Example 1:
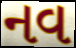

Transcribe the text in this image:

નવ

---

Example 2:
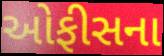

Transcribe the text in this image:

ઓફીસના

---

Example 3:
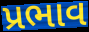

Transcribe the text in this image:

પ્રભાવ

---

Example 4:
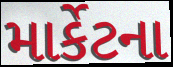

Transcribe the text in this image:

માર્કેટના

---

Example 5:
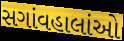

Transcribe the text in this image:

સગાંવહાલાંઓ